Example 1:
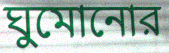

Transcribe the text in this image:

ঘুমোনোর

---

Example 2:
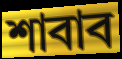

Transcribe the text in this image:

শাবাব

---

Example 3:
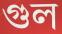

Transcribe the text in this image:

গুল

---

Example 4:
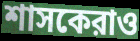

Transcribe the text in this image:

শাসকেরাও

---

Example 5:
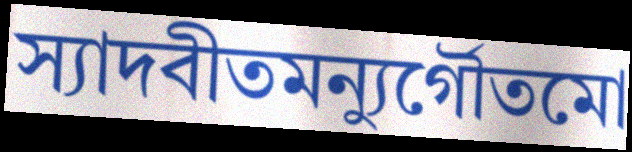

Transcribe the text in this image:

স্যাদবীতমন্যুর্গৌতমো